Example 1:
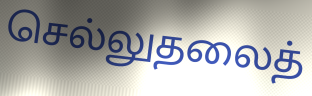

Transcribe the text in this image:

செல்லுதலைத்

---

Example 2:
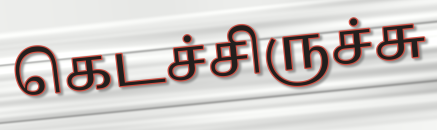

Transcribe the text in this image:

கெடச்சிருச்சு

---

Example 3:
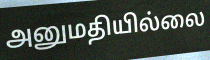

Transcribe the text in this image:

அனுமதியில்லை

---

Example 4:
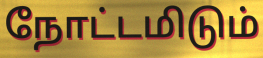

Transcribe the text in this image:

நோட்டமிடும்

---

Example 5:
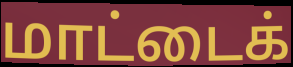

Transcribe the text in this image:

மாட்டைக்